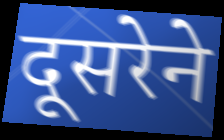
दूसरेने